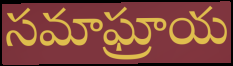
సమాఘ్రాయ